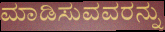
ಮಾಡಿಸುವವರನ್ನು